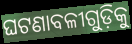
ଘଟଣାବଳୀଗୁଡ଼ିକୁ